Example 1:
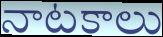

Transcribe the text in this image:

నాటకాలు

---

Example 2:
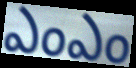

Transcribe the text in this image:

ఎంఎం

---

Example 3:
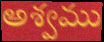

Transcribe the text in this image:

అశ్వము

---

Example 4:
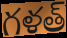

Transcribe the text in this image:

గళత్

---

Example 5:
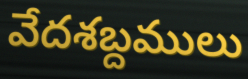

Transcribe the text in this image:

వేదశబ్దములు